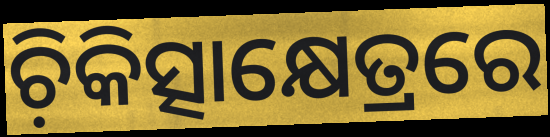
ଚ଼ିକିତ୍ସାକ୍ଷେତ୍ରରେ